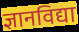
ज्ञानविद्या